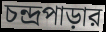
চন্দ্রপাড়ার